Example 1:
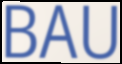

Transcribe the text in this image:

BAU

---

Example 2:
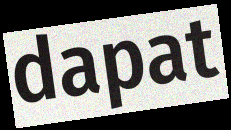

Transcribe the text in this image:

dapat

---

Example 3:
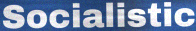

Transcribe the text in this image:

Socialistic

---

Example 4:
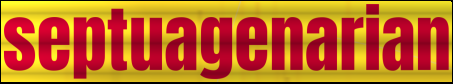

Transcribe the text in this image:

septuagenarian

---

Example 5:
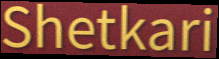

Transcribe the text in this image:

Shetkari